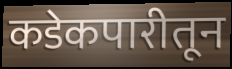
कडेकपारीतून